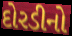
દોરડીનો